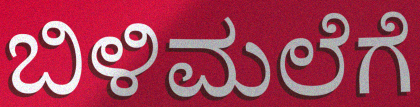
ಬಿಳಿಮಲೆಗೆ